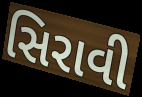
સિરાવી